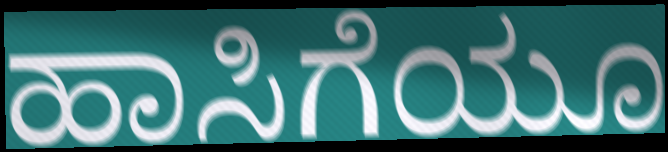
ಹಾಸಿಗೆಯೂ